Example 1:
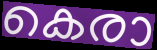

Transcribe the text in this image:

കെരാ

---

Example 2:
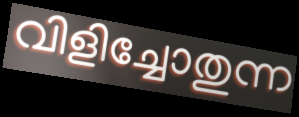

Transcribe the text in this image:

വിളിച്ചോതുന്ന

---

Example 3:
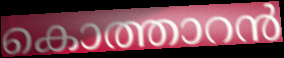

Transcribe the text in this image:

കൊത്താറൻ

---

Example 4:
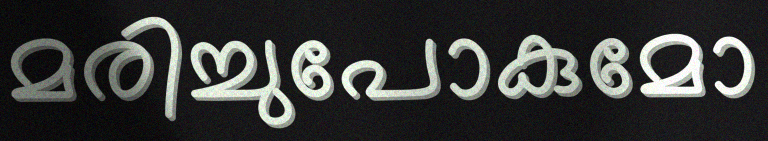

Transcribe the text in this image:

മരിച്ചുപോകുമോ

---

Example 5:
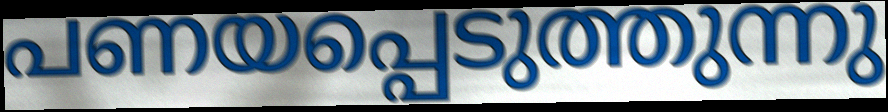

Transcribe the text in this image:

പണയപ്പെടുത്തുന്നു